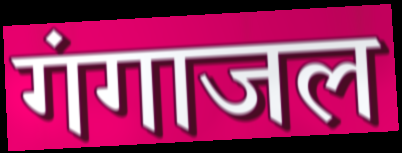
गंगाजल